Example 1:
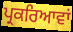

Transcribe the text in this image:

ਪ੍ਰਕਰਿਆਵਾਂ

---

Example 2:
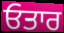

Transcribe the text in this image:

ਓਤਾਰ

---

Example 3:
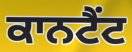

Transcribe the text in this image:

ਕਾਨਟੈਂਟ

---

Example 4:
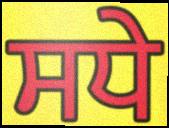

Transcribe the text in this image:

ਸਧੇ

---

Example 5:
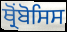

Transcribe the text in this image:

ਥ੍ਰੋਂਬੋਸਿਸ